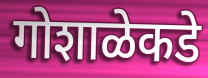
गोशाळेकडे